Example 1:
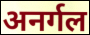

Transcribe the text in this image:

अनर्गल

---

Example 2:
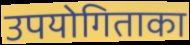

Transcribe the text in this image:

उपयोगिताका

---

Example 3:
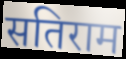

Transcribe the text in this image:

सतिराम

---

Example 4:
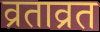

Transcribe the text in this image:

व्रताव्रत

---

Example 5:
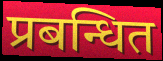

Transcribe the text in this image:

प्रबन्धित